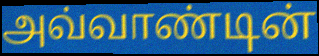
அவ்வாண்டின்